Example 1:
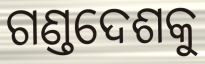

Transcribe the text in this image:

ଗଣ୍ଡଦେଶକୁ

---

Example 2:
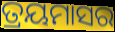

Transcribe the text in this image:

ତ୍ରୟମାସର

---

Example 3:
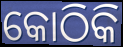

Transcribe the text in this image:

କୋଠିକି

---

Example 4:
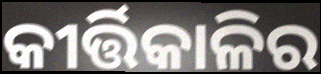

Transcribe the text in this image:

କୀର୍ତ୍ତିକାଳିର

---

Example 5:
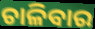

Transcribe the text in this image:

ଚାଳିବାର